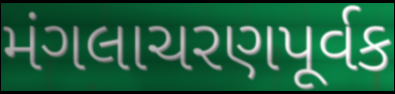
મંગલાચરણપૂર્વક